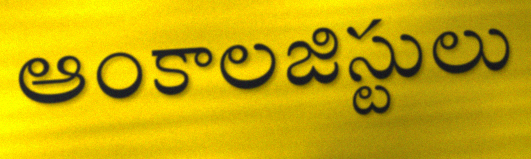
ఆంకాలజిస్టులు